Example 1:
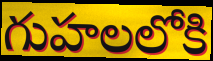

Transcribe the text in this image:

గుహలలోకి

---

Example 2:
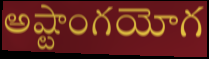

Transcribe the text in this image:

అష్టాంగయోగ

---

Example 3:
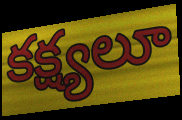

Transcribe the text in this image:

కక్ష్యలూ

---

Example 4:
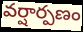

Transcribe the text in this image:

వర్షార్పణం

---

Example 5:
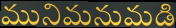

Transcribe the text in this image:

మునిమనుమడి